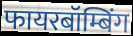
फायरबॉम्बिंग